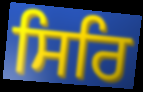
ਸਿਰਿ